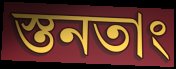
স্তনতাং